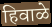
हिवाळे